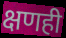
क्षणही